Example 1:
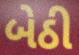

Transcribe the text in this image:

બેઠી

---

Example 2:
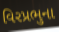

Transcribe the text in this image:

વિરપ્રભુના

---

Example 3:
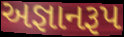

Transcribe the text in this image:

અજ્ઞાનરૂપ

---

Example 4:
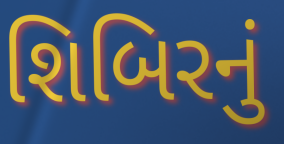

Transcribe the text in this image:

શિબિરનું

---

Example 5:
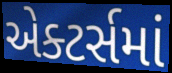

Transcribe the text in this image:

એક્ટર્સમાં